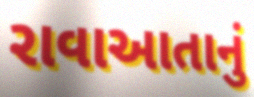
રાવાઆતાનું